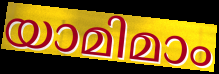
യാമിമാം